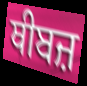
ਥੀਬਜ਼